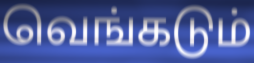
வெங்கடும்